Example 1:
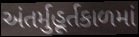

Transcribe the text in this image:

અંતર્મુહૂર્તકાળમાં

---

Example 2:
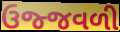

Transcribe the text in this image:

ઉજ્જવળી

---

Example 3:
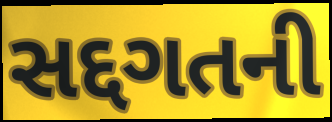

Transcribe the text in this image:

સદ્દગતની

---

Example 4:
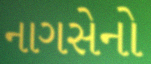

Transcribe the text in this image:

નાગસેનો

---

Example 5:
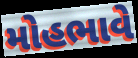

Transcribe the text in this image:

મોહભાવે